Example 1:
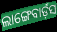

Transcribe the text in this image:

ଲାଙ୍ଗେବାର୍ଡ଼ସ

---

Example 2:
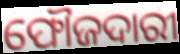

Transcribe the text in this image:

ଫୌଜଦାରୀ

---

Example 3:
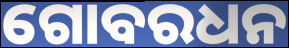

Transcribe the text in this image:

ଗୋବରଧନ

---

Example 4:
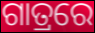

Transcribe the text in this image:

ଗାତ୍ରରେ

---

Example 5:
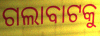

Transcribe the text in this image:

ଗଲାବାଟକୁ